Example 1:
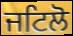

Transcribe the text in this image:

ਜਟਿਲੋ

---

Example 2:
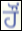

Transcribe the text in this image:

ਹੌਂ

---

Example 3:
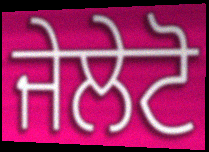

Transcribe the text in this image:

ਜੇਲੇਟੋ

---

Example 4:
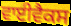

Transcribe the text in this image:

ਵਾਈਵੈਕਸ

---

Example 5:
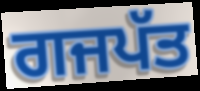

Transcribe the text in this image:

ਗਜਪੱਤ